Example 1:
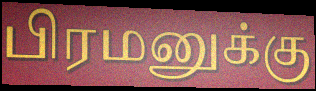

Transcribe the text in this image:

பிரமனுக்கு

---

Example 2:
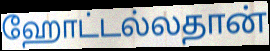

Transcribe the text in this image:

ஹோட்டல்லதான்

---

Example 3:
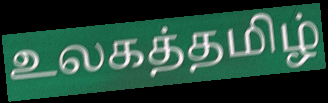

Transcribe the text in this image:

உலகத்தமிழ்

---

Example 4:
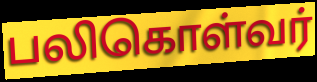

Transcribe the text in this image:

பலிகொள்வர்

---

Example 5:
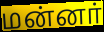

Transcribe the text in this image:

மன்னர்